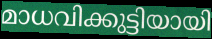
മാധവിക്കുട്ടിയായി